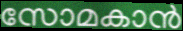
സോമകാൻ